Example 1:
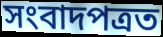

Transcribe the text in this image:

সংবাদপত্ৰত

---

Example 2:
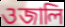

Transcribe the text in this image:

ওজালি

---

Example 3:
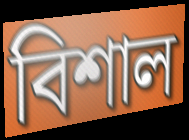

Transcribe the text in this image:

বিশাল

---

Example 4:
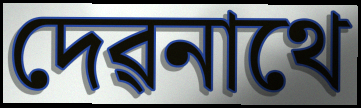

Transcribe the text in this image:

দেৱনাথে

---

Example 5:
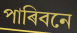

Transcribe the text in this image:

পাৰিবনে